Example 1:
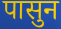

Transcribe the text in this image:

पासुन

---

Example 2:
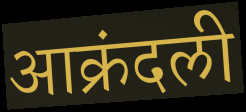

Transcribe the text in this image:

आक्रंदली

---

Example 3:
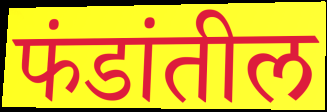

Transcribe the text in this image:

फंडांतील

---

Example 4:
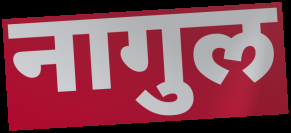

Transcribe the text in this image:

नागुल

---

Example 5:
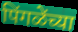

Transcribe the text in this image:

पिंगळेंच्या